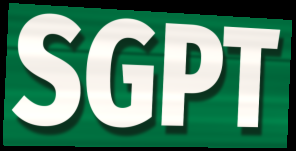
SGPT